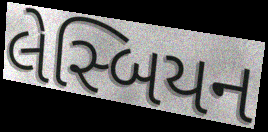
લેસ્બિયન